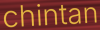
chintan